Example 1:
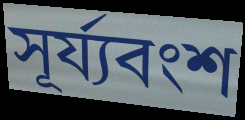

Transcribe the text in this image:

সূর্য্যবংশ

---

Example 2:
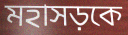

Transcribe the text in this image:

মহাসড়কে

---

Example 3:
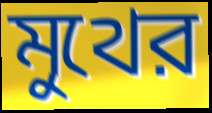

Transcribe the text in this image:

মুথের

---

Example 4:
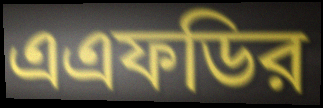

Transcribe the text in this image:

এএফডির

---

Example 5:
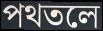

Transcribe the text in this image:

পথতলে